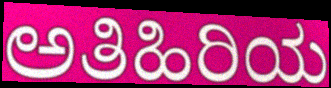
ಅತಿಹಿರಿಯ